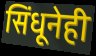
सिंधूनेही